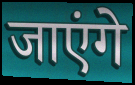
जाएंगे